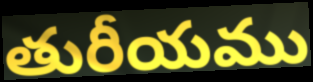
తురీయము